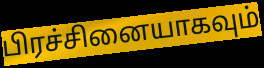
பிரச்சினையாகவும்